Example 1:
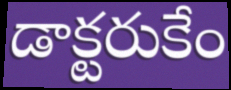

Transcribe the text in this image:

డాక్టరుకేం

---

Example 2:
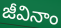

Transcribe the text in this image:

జీవినాం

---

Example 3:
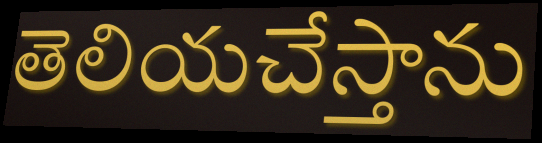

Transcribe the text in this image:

తెలియచేస్తాను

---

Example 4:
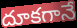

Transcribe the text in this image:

దూకగానే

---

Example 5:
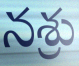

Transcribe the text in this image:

నశ్రు